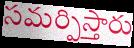
సమర్పిస్తారు